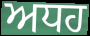
ਅਧਹ